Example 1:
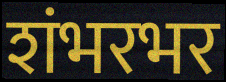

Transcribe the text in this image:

शंभरभर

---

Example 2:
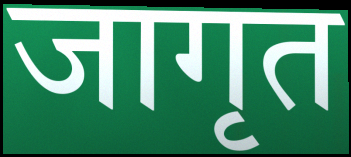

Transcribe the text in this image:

जागृत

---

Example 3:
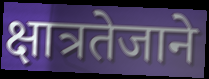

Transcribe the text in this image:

क्षात्रतेजाने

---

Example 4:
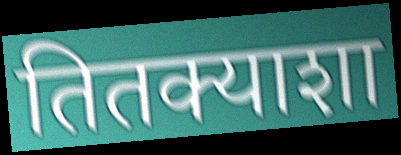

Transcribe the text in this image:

तितक्याशा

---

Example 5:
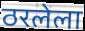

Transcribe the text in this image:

ठरलेला